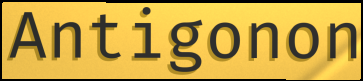
Antigonon